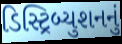
ડિસ્ટ્રિબ્યુશનનું